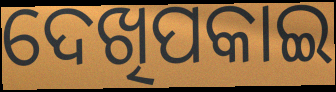
ଦେଖିପକାଇ